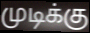
முடிக்கு